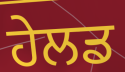
ਹੇਲਡ